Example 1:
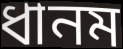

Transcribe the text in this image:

ধানম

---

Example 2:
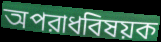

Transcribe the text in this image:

অপরাধবিষয়ক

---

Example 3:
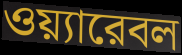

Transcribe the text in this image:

ওয়্যারেবল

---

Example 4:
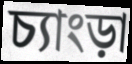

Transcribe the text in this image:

চ্যাংড়া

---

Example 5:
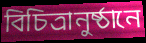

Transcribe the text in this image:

বিচিত্রানুষ্ঠানে